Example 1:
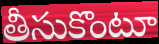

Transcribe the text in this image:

తీసుకొంటూ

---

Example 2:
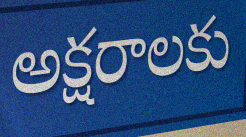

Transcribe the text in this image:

అక్షరాలకు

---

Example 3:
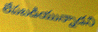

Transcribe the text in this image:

లేపబడియున్నాడని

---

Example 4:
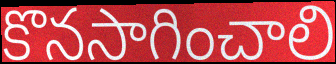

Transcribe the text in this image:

కొనసాగించాలి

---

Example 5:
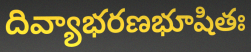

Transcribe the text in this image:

దివ్యాభరణభూషితః